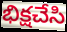
భిక్షచేసి